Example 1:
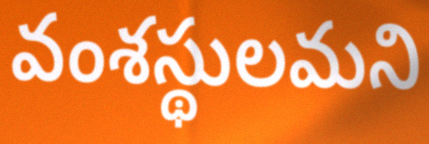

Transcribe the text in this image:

వంశస్థులమని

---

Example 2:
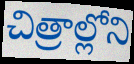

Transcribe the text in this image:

చిత్రాల్లోని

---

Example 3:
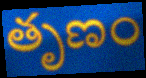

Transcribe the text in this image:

తృణం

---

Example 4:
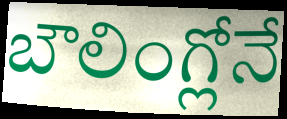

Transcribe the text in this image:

బౌలింగ్లోనే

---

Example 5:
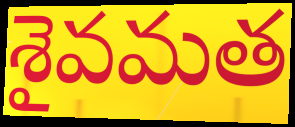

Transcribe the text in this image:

శైవమత